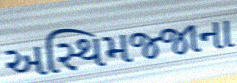
અસ્થિમજ્જાના